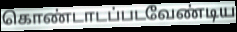
கொண்டாடப்படவேண்டிய